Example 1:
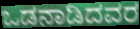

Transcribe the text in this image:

ಒಡನಾಡಿದವರ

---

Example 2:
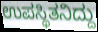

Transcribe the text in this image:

ಉಪಸ್ಥಿತನಿದ್ದು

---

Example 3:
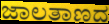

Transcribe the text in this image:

ಜಾಲತಾಣದ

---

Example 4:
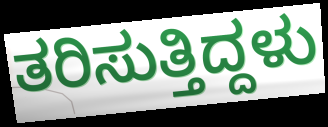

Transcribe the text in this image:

ತರಿಸುತ್ತಿದ್ದಳು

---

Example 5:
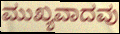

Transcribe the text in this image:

ಮುಖ್ಯವಾದವು